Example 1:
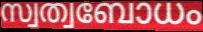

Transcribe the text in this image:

സ്വത്വബോധം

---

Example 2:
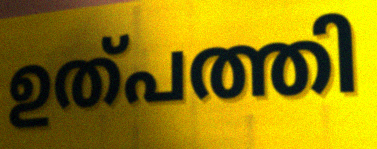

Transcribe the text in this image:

ഉത്പത്തി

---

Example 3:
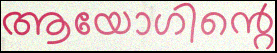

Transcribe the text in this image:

ആയോഗിന്റെ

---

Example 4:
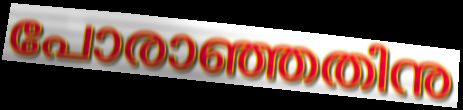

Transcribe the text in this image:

പോരാഞ്ഞതിനു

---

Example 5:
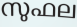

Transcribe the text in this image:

സുഫല